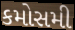
કમોસમી